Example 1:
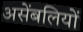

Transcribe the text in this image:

असेंबलियों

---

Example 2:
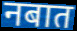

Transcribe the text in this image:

नबात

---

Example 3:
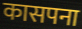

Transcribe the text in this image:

कासपना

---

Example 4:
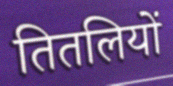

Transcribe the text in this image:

तितलियों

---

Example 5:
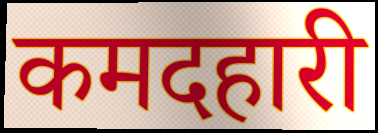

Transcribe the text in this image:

कमदहारी